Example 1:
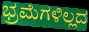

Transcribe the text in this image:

ಭ್ರಮೆಗಳಿಲ್ಲದ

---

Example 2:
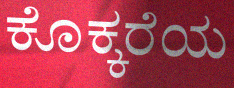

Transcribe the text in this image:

ಕೊಕ್ಕರೆಯ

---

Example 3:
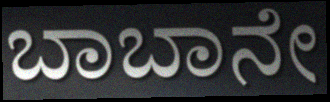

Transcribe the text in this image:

ಬಾಬಾನೇ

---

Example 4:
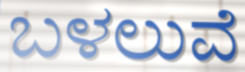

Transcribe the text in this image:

ಬಳಲುವೆ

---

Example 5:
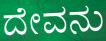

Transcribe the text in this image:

ದೇವನು